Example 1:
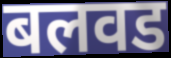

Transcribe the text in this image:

बलवड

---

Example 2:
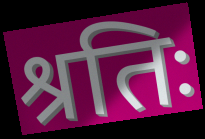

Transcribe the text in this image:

श्रतिः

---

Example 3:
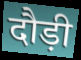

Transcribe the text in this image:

दौड़ी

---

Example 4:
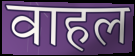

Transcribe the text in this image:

वाहल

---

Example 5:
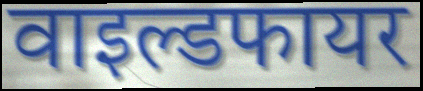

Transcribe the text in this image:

वाइल्डफायर